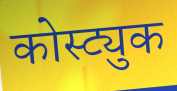
कोस्ट्युक